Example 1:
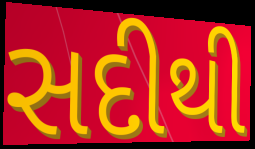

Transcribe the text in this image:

સદીથી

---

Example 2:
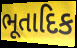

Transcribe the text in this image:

ભૂતાદિક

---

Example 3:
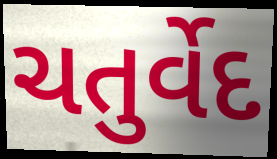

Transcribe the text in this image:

ચતુર્વેદ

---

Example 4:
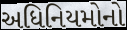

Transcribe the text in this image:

અધિનિયમોનો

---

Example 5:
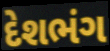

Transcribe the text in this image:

દેશભંગ